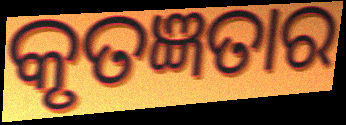
କୃତଜ୍ଞତାର